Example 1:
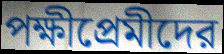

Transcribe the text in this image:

পক্ষীপ্রেমীদের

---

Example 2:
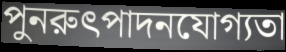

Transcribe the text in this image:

পুনরুৎপাদনযোগ্যতা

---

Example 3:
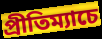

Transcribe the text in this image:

প্রীতিম্যাচে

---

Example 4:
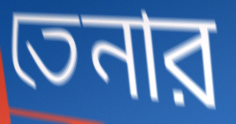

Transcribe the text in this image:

তেনার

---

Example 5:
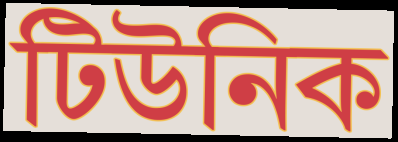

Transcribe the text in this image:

টিউনিক